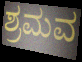
ಶ್ರಮವ